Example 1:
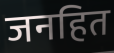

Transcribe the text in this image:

जनहित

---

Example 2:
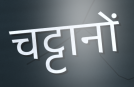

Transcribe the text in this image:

चट्टानों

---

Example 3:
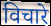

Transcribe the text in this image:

विचारे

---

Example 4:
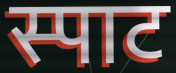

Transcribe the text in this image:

स्पाट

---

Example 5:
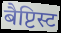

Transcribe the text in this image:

बैप्टिस्ट